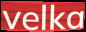
velka